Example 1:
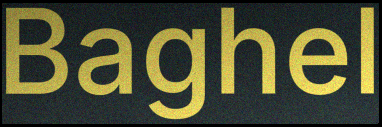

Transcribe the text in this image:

Baghel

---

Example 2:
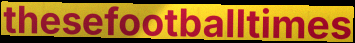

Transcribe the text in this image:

thesefootballtimes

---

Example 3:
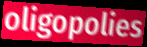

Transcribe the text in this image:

oligopolies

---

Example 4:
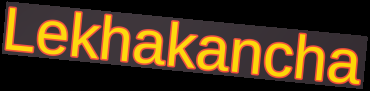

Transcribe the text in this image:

Lekhakancha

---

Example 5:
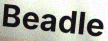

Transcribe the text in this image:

Beadle